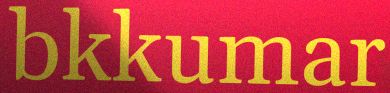
bkkumar